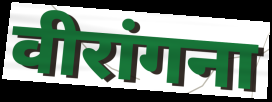
वीरांगना